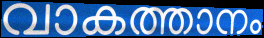
വാകത്താനം